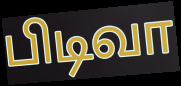
பிடிவா